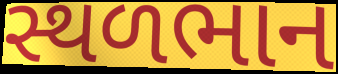
સ્થળભાન